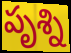
పృశ్ని